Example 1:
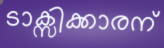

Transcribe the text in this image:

ടാക്സിക്കാരന്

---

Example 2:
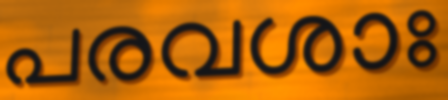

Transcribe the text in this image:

പരവശാഃ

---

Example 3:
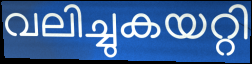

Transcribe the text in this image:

വലിച്ചുകയറ്റി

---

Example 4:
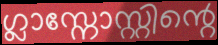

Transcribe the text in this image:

ഗ്ലാസ്നോസ്റ്റിന്റെ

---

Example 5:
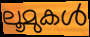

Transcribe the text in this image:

ലൂമുകൾ